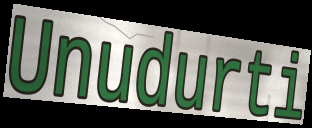
Unudurti